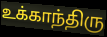
உக்காந்திரு